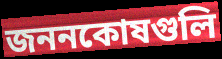
জননকোষগুলি